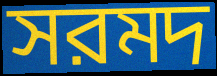
সরমদ